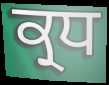
ਕ੍ਰਧ